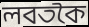
লবতকৈ